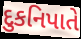
દુકનિપાતે